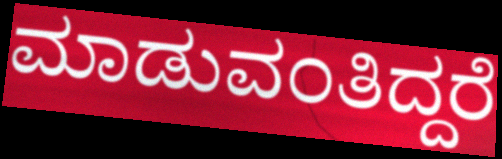
ಮಾಡುವಂತಿದ್ದರೆ